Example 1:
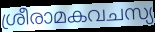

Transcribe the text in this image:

ശ്രീരാമകവചസ്യ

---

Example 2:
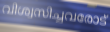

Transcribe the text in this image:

വിശ്വസിച്ചവരോട്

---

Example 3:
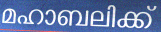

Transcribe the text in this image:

മഹാബലിക്ക്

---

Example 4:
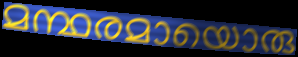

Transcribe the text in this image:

മന്ഥരമായൊരു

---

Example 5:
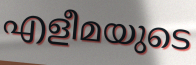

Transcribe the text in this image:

എളീമയുടെ